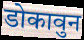
डोकावुन